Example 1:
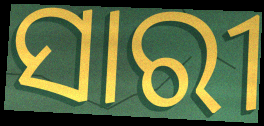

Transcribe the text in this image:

ସାରୀ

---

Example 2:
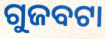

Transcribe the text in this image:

ଗୁଜବଟା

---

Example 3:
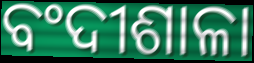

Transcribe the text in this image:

ବଂଦୀଶାଳା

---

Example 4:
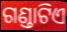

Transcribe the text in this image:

ଗଣ୍ଡାଟିଏ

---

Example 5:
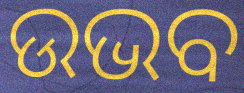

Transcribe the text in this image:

ଉଭବ